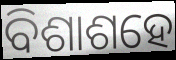
ବିଶାଶହେ